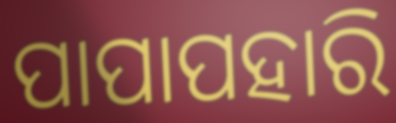
ପାପାପହାରି